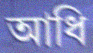
আধি